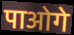
पाओगे